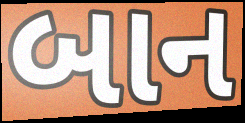
બાન